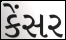
કેંસર